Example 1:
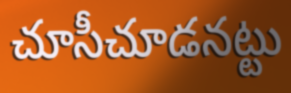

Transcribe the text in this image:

చూసీచూడనట్టు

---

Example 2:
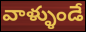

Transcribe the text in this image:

వాళ్ళుండే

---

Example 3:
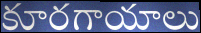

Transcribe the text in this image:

కూరగాయాలు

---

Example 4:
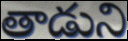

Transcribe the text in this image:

తాడుని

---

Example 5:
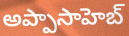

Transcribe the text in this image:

అప్పాసాహెబ్